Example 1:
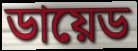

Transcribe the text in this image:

ডায়েড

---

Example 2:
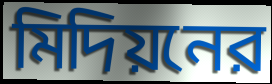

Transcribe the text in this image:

মিদিয়নের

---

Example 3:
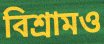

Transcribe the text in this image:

বিশ্রামও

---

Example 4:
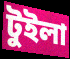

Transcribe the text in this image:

টুইলা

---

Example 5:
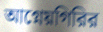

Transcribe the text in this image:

আগ্নেয়গিরির